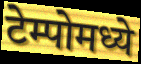
टेम्पोमध्ये